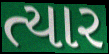
ત્‍યાર